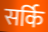
सर्कि